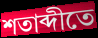
শতাব্দীতে